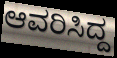
ಆವರಿಸಿದ್ದ